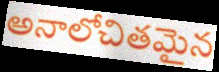
అనాలోచితమైన